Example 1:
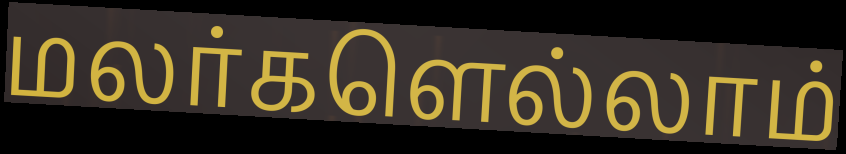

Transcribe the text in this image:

மலர்களெல்லாம்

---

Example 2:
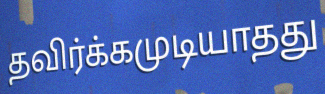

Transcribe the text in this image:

தவிர்க்கமுடியாதது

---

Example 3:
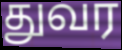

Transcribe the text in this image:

துவர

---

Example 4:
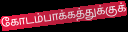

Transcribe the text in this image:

கோடம்பாக்கத்துக்குக்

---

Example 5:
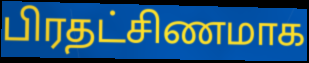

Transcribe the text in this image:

பிரதட்சிணமாக